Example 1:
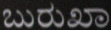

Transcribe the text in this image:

ಬುರುಖಾ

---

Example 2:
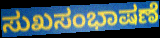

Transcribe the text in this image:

ಸುಖಸಂಭಾಷಣೆ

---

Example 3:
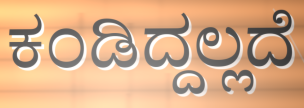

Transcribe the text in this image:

ಕಂಡಿದ್ದಲ್ಲದೆ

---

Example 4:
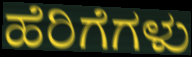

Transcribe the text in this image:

ಹೆರಿಗೆಗಳು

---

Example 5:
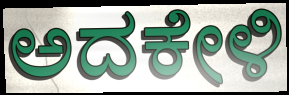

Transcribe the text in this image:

ಅದಕೇಳಿ